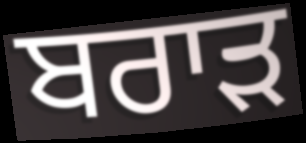
ਬਰਾਡ਼